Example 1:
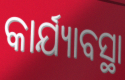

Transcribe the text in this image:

କାର୍ଯ୍ୟାବସ୍ଥା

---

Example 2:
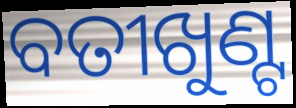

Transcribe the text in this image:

ବତୀଖୁଣ୍ଟ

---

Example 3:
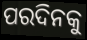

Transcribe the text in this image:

ପରଦିନକୁ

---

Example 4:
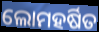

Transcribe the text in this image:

ଲୋମହର୍ଷିତ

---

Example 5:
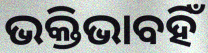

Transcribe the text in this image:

ଭକ୍ତିଭାବହିଁ